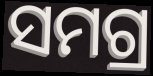
ସମଗ୍ର